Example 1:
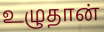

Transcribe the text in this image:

உழுதான்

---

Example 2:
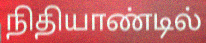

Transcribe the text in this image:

நிதியாண்டில்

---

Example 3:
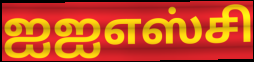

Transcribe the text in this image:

ஐஐஎஸ்சி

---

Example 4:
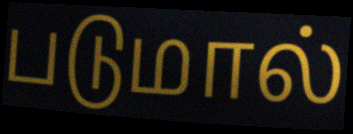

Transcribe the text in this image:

படுமால்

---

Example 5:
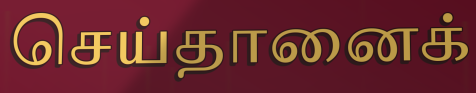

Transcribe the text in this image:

செய்தானைக்